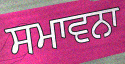
ਸਮਾਵਨਾ